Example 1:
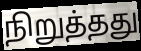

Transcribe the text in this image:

நிறுத்தது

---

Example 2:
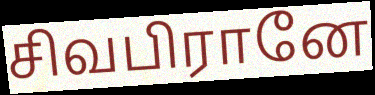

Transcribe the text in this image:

சிவபிரானே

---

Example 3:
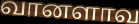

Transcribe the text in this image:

வானளாவ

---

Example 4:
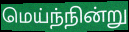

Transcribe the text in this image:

மெய்ந்நின்று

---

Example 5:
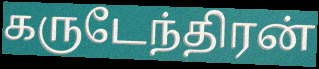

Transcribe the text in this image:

கருடேந்திரன்